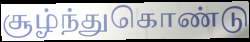
சூழ்ந்துகொண்டு